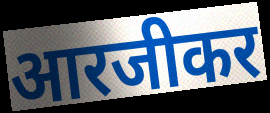
आरजीकर